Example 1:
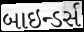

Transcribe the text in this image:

બાઇન્ડર્સ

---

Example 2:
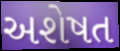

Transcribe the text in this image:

અશેષત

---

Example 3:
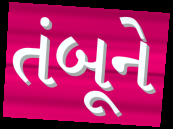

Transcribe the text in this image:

તંબૂને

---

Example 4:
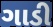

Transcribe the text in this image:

ગાડી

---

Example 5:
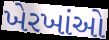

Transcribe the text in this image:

ખેરખાંઓ